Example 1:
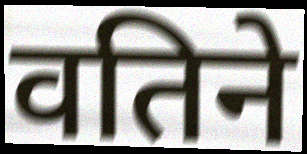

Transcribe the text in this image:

वतिने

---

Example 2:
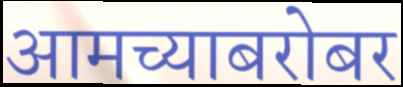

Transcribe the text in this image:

आमच्याबरोबर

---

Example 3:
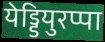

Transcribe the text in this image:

येड्डियुरप्पा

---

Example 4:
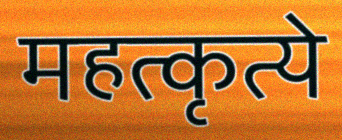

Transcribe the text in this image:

महत्कृत्ये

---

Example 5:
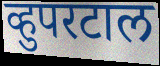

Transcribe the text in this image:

व्हुपरटाल